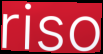
riso